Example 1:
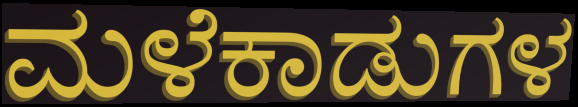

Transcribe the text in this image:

ಮಳೆಕಾಡುಗಳ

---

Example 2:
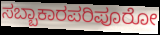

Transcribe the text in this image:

ಸಬ್ಬಾಕಾರಪರಿಪೂರೋ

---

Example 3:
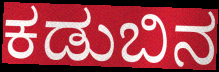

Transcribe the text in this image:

ಕಡುಬಿನ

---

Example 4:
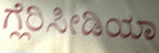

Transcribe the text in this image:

ಗ್ಲೆರಿಸೀಡಿಯಾ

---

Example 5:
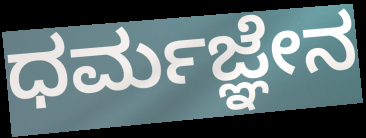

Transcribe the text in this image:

ಧರ್ಮಜ್ಞೇನ